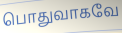
பொதுவாகவே